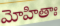
మోహితాః